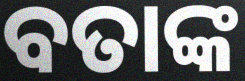
ବତାଙ୍କ